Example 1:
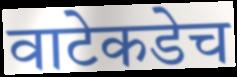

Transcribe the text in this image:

वाटेकडेच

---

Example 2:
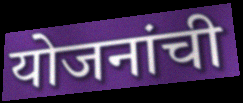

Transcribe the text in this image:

योजनांची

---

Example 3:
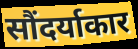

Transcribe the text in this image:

सौंदर्याकार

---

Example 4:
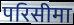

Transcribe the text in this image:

परिसीमा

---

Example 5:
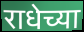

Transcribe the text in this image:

राधेच्या